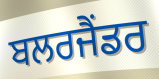
ਬਲਰਜੈਂਡਰ